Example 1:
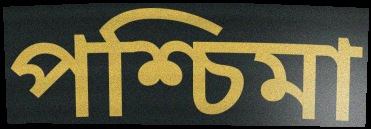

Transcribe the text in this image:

পশ্চিমা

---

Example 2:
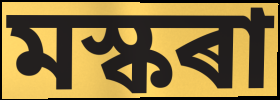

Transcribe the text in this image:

মস্কৰা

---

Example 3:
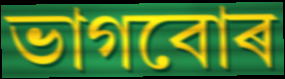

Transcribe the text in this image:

ভাগবোৰ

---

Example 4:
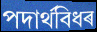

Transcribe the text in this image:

পদাৰ্থবিধৰ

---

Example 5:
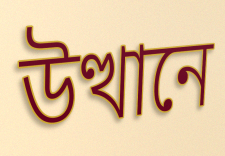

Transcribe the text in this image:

উত্থানে